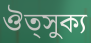
ঔত্সুক্য